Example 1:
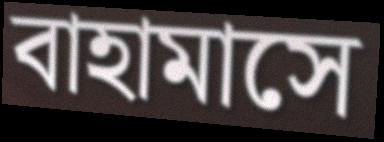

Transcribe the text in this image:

বাহামাসে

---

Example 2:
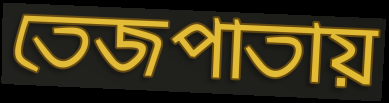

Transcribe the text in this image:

তেজপাতায়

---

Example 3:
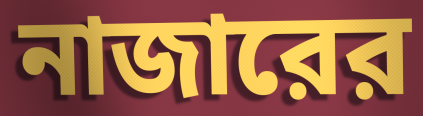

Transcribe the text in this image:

নাজারের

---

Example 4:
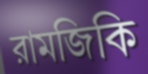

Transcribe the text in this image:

রামজিকি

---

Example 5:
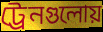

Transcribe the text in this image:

ট্রেনগুলোয়